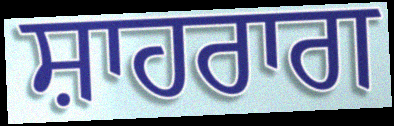
ਸ਼ਾਹਰਾਗ